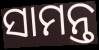
ସାମନ୍ତ